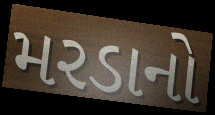
મરડાનો